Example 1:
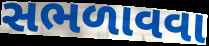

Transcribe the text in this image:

સભળાવવા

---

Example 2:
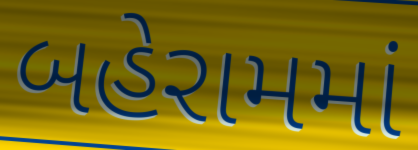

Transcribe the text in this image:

બહેરામમાં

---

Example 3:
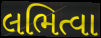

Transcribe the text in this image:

લભિત્વા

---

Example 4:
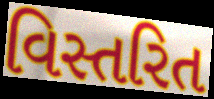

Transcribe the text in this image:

વિસ્તરિત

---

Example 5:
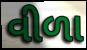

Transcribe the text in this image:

વીળા